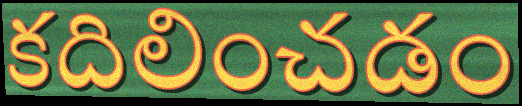
కదిలించడం